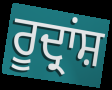
ਰੂਦ੍ਰਾਂਸ਼